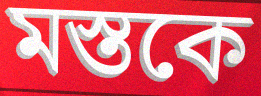
মস্তকে